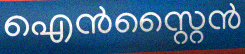
ഐൻസ്റ്റൈൻ